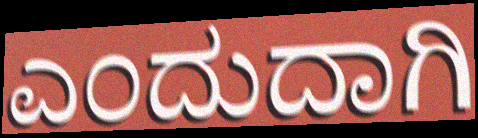
ಎಂದುದಾಗಿ